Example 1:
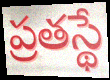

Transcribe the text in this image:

ప్రతస్థే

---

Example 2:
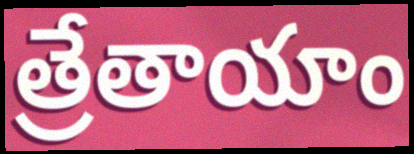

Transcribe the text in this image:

త్రేతాయాం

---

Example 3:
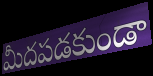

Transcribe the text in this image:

మీదపడకుండా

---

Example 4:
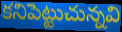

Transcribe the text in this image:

కనిపెట్టుచున్నవి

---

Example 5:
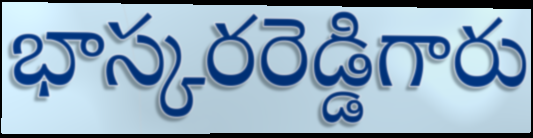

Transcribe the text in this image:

భాస్కరరెడ్డిగారు